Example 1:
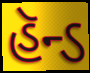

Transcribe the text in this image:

હૅન્ડ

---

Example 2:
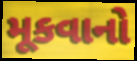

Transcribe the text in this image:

મૂકવાનો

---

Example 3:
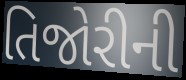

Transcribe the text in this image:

તિજોરીની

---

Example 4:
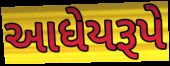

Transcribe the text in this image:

આધેયરૂપે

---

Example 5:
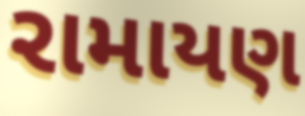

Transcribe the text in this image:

રામાયણ